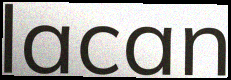
lacan